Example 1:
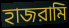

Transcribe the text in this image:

হাজরামি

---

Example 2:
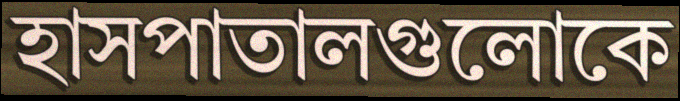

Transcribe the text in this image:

হাসপাতালগুলোকে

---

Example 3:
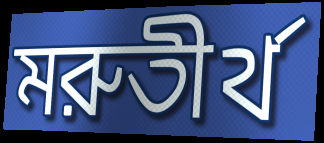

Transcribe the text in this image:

মরুতীর্থ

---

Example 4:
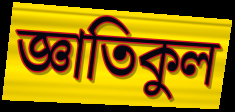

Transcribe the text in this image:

জ্ঞাতিকুল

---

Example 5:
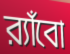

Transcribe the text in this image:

র‍্যাঁবো